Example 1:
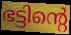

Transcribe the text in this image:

ഭട്ടിന്റെ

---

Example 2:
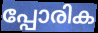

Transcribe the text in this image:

പ്പോരിക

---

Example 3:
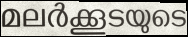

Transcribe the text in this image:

മലർക്കൂടയുടെ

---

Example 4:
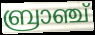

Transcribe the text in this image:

ബ്രാഞ്ച്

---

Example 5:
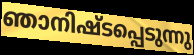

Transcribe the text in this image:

ഞാനിഷ്ടപ്പെടുന്നു